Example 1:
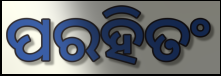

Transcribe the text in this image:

ପରହିତଂ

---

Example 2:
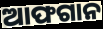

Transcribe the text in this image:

ଆଫଗାନ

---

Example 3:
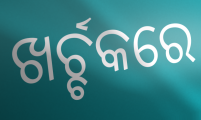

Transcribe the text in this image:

ଖର୍ଚ୍ଚକରେ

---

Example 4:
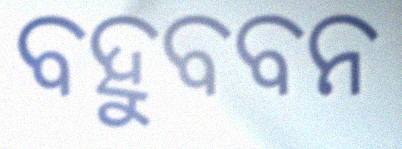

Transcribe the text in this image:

ବହୁବବନ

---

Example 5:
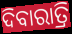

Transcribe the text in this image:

ଦିବାରାତ୍ରି